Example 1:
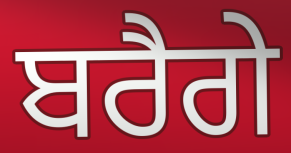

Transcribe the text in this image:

ਬਰੈਗੇ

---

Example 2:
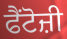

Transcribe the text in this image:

ਫੈਂਟੋਜ਼ੀ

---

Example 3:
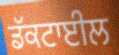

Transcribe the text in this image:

ਡੱਕਟਾਈਲ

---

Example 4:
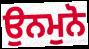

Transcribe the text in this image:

ਉਨਮੁਨੋ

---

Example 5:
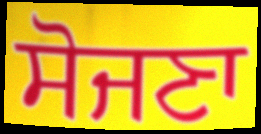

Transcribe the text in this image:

ਸੋਜਣਾ